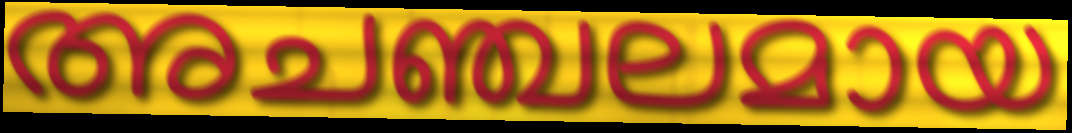
അചഞ്ചലമായ